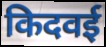
किदवई